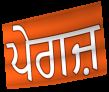
ਪੇਗਜ਼